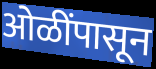
ओळींपासून